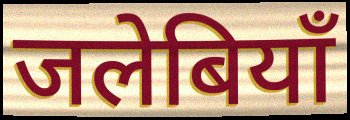
जलेबियाँ